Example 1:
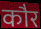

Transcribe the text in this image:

कौर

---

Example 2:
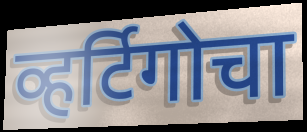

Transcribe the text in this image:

व्हर्टिगोचा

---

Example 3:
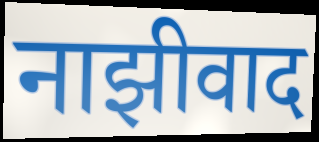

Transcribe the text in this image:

नाझीवाद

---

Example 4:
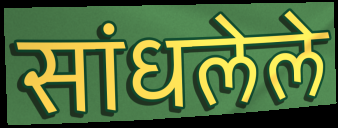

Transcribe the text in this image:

सांधलेले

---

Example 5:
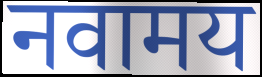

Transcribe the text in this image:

नवामय